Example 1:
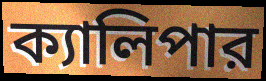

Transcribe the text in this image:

ক্যালিপার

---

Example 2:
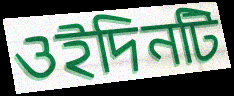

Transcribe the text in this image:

ওইদিনটি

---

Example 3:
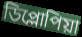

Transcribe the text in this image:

ডিপ্লোপিয়া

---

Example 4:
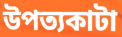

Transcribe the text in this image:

উপত্যকাটা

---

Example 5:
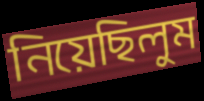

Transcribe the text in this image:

নিয়েছিলুম